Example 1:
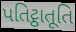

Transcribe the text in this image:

પતિટ્ઠાતૂતિ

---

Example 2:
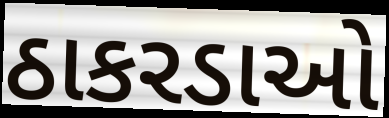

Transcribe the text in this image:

ઠાકરડાઓ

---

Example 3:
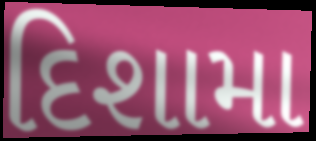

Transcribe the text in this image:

દિશામા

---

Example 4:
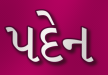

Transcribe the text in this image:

પદેન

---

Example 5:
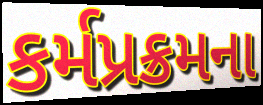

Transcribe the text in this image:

કર્મપ્રક્રમના